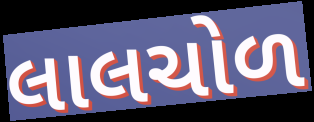
લાલચોળ